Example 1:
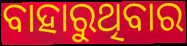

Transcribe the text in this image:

ବାହାରୁଥିବାର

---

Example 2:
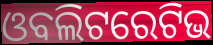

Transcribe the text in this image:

ଓବଲିଟରେଟିଭ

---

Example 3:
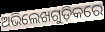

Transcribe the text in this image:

ଅଭିଲେଖଗୁଡ଼ିକରେ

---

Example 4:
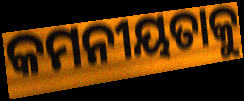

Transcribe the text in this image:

କମନୀୟତାକୁ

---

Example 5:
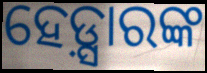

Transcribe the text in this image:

ହେଡ଼୍ସାରଙ୍କ